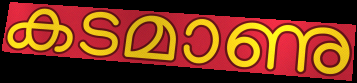
കടമാണു